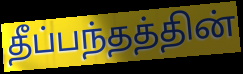
தீப்பந்தத்தின்